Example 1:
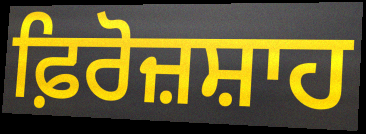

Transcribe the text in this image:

ਫ਼ਿਰੋਜ਼ਸ਼ਾਹ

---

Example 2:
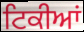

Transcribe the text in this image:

ਟਿਕੀਆਂ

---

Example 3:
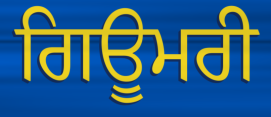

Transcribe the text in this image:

ਗਿਊਮਰੀ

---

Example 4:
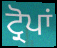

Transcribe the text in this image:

ਟ੍ਰੋਪਾਂ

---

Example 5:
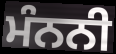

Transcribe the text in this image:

ਮੰਨਨੀ